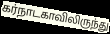
கர்நாடகாவிலிருந்து